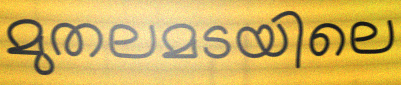
മുതലമടയിലെ